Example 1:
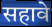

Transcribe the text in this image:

सहावे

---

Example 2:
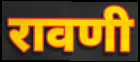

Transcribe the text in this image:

रावणी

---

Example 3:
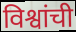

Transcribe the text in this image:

विश्वांची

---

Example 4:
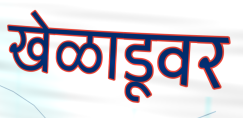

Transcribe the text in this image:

खेळाडूवर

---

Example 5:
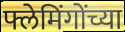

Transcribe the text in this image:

फ्लेमिंगोंच्या